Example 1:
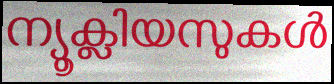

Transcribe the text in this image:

ന്യൂക്ലിയസുകൾ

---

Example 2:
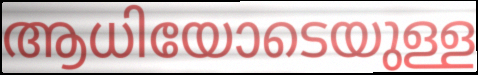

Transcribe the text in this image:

ആധിയോടെയുള്ള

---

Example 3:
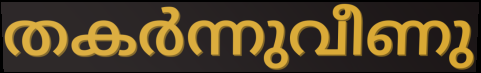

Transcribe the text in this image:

തകർന്നുവീണു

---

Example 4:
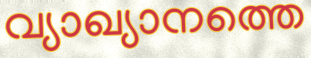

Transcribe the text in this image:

വ്യാഖ്യാനത്തെ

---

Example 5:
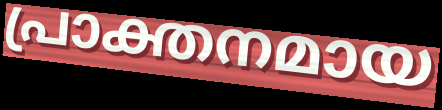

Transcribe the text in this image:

പ്രാക്തനമായ